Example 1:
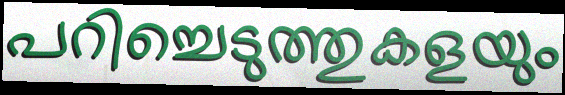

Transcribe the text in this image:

പറിച്ചെടുത്തുകളയും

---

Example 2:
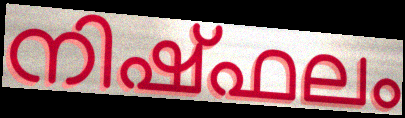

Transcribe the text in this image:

നിഷ്ഫലം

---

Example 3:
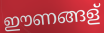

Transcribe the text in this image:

ഈണങ്ങള്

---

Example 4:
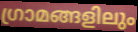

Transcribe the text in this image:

ഗ്രാമങ്ങളിലും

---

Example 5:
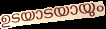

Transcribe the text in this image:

ഉടയാടയായും